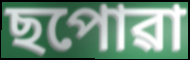
ছপোৱা